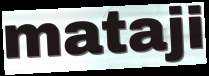
mataji